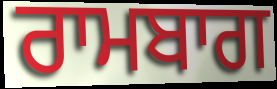
ਰਾਮਬਾਗ